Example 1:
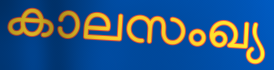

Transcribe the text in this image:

കാലസംഖ്യ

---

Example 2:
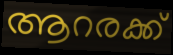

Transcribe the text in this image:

ആറരക്ക്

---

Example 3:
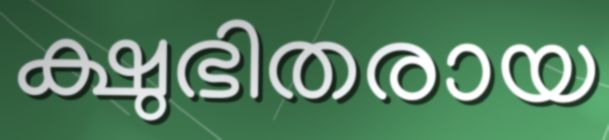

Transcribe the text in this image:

ക്ഷുഭിതരായ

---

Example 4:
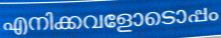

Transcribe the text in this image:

എനിക്കവളോടൊപ്പം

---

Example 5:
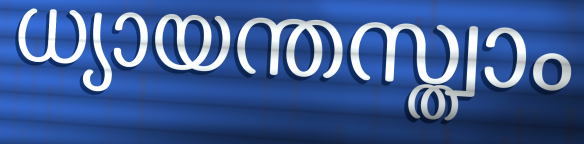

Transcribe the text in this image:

ധ്യായന്തസ്ത്വാം